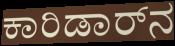
ಕಾರಿಡಾರ್‌ನ